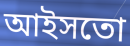
আইসতো